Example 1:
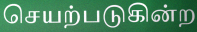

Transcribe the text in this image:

செயற்படுகின்ற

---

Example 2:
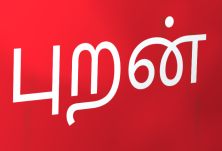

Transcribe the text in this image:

புறன்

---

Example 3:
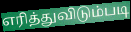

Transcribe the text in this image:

எரித்துவிடும்படி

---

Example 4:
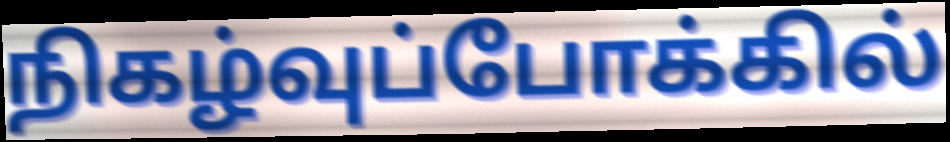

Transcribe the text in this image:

நிகழ்வுப்போக்கில்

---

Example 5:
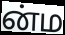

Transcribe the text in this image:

ன்ம